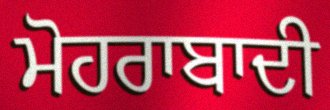
ਮੋਹਰਾਬਾਦੀ